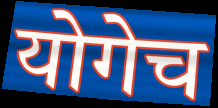
योगेच